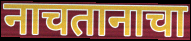
नाचतानाचा